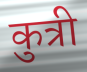
कुत्री